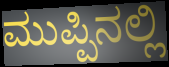
ಮುಪ್ಪಿನಲ್ಲಿ